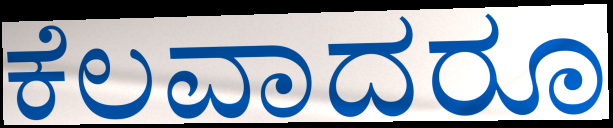
ಕೆಲವಾದರೂ